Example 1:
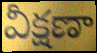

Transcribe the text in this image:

వీక్షణా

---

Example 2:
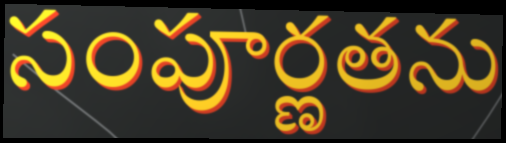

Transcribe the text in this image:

సంపూర్ణతను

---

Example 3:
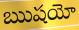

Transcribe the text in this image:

ఋషయో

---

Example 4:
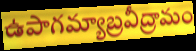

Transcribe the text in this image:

ఉపాగమ్యాబ్రవీద్రామం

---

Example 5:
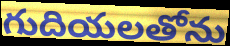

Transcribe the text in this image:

గుదియలతోను